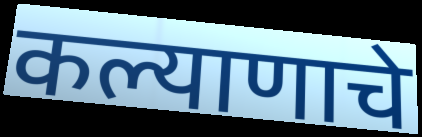
कल्याणाचे